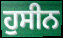
ਹੁਸੀਨ